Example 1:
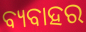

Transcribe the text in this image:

ବ୍ୟବାହର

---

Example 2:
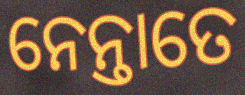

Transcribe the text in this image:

ନେନ୍ତାତେ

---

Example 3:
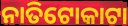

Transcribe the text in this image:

ନାତିଟୋକାଟା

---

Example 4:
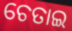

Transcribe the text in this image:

ଚେତାଇ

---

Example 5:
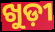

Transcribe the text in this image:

ଖୁଡ଼ୀ